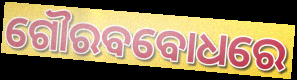
ଗୌରବବୋଧରେ